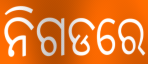
ନିଗଡରେ